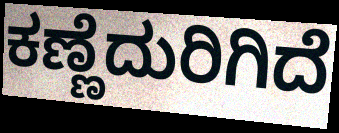
ಕಣ್ಣೆದುರಿಗಿದೆ